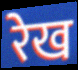
रेख